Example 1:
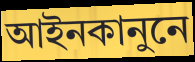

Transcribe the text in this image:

আইনকানুনে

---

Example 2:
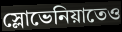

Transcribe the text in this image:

স্লোভেনিয়াতেও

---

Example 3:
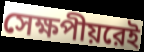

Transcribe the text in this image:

সেক্ষপীয়রেই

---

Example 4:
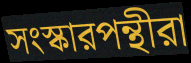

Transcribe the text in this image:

সংস্কারপন্থীরা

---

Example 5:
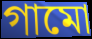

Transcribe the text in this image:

গামো